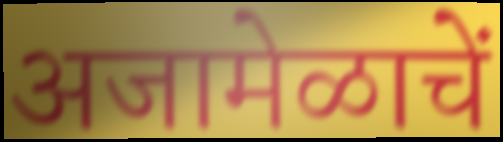
अजामेळाचें